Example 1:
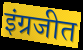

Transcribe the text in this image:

इंग्रजीत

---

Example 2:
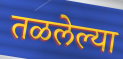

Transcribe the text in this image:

तळलेल्या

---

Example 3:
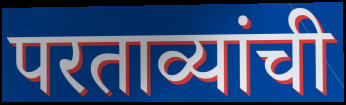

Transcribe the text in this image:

परताव्यांची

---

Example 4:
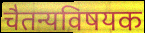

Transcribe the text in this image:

चैतन्यविषयक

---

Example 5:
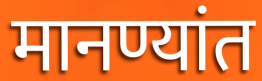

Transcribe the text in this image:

मानण्यांत